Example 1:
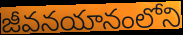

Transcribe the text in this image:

జీవనయానంలోని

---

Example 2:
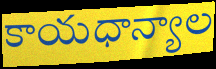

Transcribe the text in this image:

కాయధాన్యాల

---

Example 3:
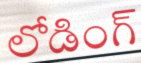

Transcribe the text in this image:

లోడింగ్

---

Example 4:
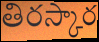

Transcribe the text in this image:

తిరస్కార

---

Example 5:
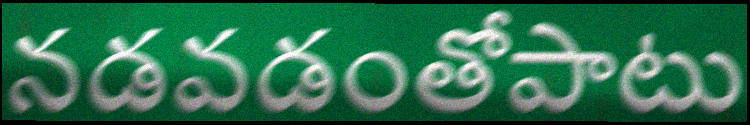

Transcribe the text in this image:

నడవడంతోపాటు